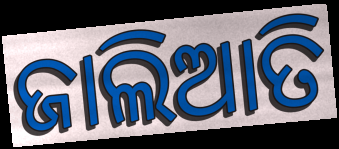
ଜାଲିଆତି